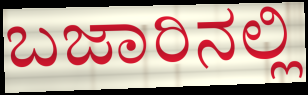
ಬಜಾರಿನಲ್ಲಿ